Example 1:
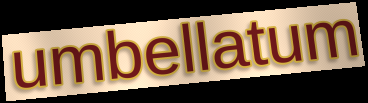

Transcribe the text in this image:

umbellatum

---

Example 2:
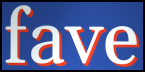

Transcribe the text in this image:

fave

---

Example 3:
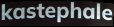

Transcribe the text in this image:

kastephale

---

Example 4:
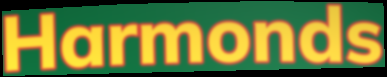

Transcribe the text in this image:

Harmonds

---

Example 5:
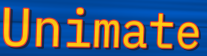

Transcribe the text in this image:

Unimate